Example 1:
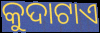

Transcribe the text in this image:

କୁଦାଟାଏ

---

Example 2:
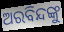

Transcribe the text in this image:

ଅରବିନ୍ଦଙ୍କୁ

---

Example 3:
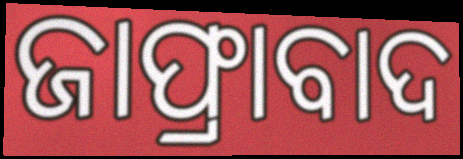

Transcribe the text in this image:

ଜାଫ୍ରାବାଦ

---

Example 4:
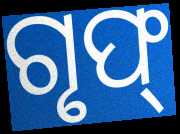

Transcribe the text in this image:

ଗୃଫ୍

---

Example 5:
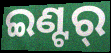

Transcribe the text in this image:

ଇଣ୍ଟର୍